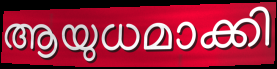
ആയുധമാക്കി